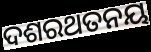
ଦଶରଥତନୟ